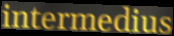
intermedius